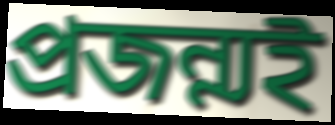
প্ৰজন্মই